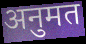
अनुमत